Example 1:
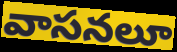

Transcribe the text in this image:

వాసనలూ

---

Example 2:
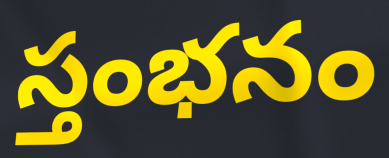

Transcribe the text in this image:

స్తంభనం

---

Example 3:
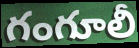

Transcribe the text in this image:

గంగూలీ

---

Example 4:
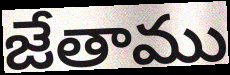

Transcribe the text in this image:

జేతాము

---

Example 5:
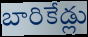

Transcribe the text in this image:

బారికేడ్లు